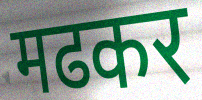
मढकर